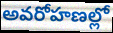
అవరోహణల్లో